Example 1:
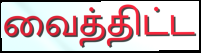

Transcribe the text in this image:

வைத்திட்ட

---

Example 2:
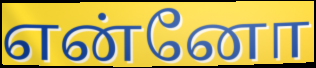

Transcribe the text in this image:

என்னோ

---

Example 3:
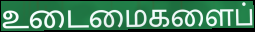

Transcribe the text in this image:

உடைமைகளைப்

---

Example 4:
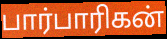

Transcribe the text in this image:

பார்பாரிகன்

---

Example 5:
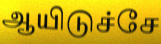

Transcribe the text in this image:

ஆயிடுச்சே